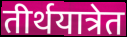
तीर्थयात्रेत